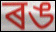
ৰঙ